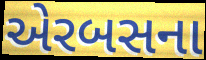
એરબસના